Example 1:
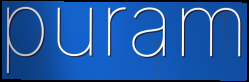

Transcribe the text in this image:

puram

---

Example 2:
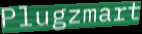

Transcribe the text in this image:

Plugzmart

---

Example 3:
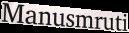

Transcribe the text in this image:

Manusmruti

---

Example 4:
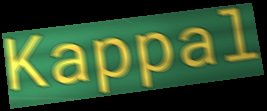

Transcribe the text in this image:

Kappal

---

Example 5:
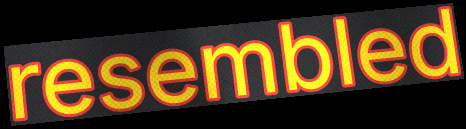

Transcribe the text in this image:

resembled